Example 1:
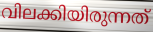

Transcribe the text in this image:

വിലക്കിയിരുന്നത്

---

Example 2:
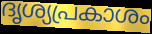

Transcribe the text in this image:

ദൃശ്യപ്രകാശം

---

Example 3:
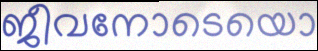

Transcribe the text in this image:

ജീവനോടെയൊ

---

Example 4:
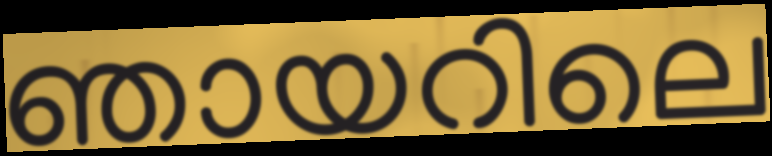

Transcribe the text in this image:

ഞായറിലെ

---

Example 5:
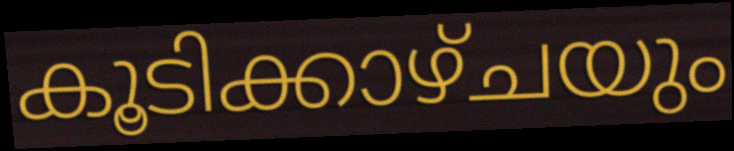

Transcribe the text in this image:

കൂടിക്കാഴ്ചയും